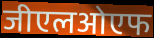
जीएलओएफ